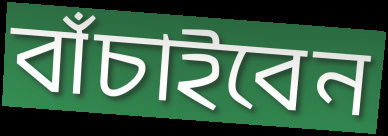
বাঁচাইবেন